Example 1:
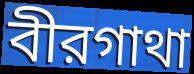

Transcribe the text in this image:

বীরগাথা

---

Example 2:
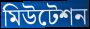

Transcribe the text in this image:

মিউটেশন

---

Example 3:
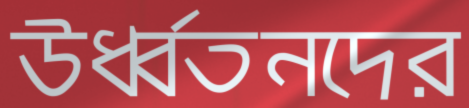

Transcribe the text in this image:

উর্ধ্বতনদের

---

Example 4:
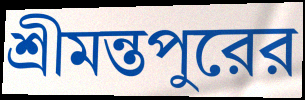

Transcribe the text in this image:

শ্রীমন্তপুরের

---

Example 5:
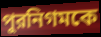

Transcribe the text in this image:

পুরনিগমকে